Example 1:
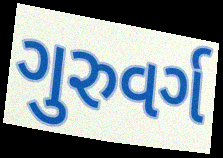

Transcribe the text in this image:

ગુરુવર્ગ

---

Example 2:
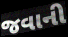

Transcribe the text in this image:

જવાની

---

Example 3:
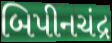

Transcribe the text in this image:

બિપીનચંદ્ર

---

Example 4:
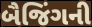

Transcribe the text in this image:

બૈજિંગની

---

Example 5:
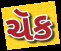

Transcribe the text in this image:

ચૅક